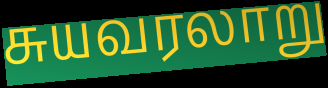
சுயவரலாறு